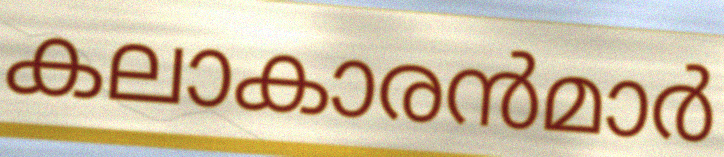
കലാകാരൻമാർ